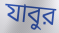
যাবুর